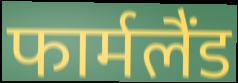
फार्मलैंड